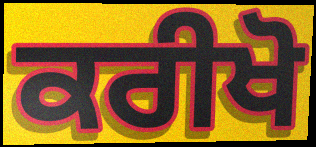
ਕਰੀਖੋ